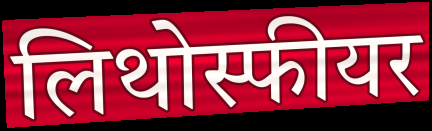
लिथोस्फीयर